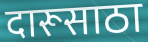
दारूसाठा